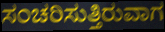
ಸಂಚರಿಸುತ್ತಿರುವಾಗ